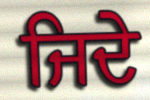
ਜਿਦੇ